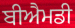
ਬੀਐਮਡੀ